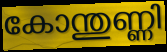
കോന്തുണ്ണി